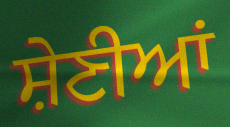
ਸ਼ੇਣੀਆਂ